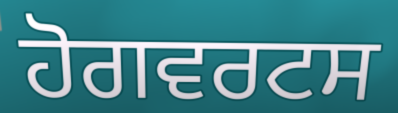
ਹੋਗਵਰਟਸ